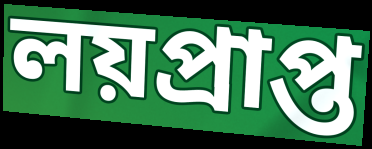
লয়প্রাপ্ত